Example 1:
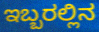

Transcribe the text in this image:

ಇಬ್ಬರಲ್ಲಿನ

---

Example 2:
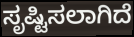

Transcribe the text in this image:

ಸೃಷ್ಟಿಸಲಾಗಿದೆ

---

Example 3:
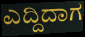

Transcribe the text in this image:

ಎದ್ದಿದಾಗ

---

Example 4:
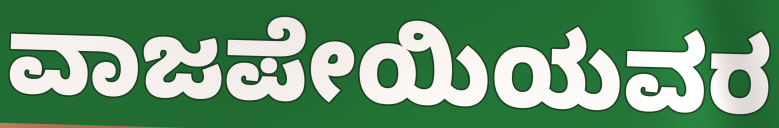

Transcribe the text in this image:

ವಾಜಪೇಯಿಯವರ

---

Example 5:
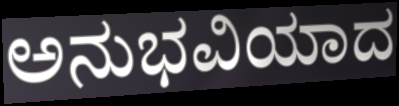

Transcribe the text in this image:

ಅನುಭವಿಯಾದ